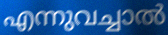
എന്നുവച്ചാൽ